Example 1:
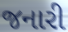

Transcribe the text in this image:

જનારી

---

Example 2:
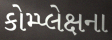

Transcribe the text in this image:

કોમ્પ્લેક્ષના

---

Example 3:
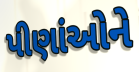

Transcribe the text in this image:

પીણાંઓને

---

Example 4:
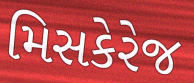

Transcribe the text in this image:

મિસકેરેજ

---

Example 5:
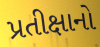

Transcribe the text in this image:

પ્રતીક્ષાનો